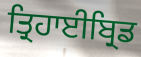
ਤ੍ਰਿਹਾਈਬ੍ਰਿਡ